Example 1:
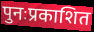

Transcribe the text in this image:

पुनःप्रकाशित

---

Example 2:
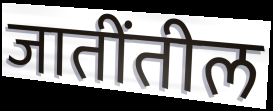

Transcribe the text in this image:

जातींतील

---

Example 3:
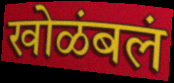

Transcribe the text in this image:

खोळंबलं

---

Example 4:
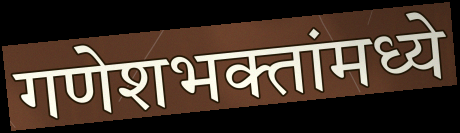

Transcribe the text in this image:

गणेशभक्तांमध्ये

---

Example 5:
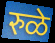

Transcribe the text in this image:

रुळे